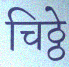
चिठ्ठे